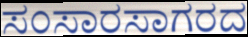
ಸಂಸಾರಸಾಗರದ